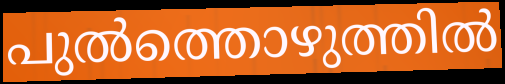
പുൽത്തൊഴുത്തിൽ